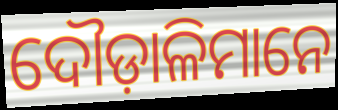
ଦୌଡ଼ାଳିମାନେ